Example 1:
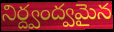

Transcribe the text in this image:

నిర్ద్వంద్వమైన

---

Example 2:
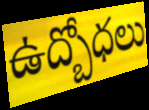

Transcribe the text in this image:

ఉద్బోధలు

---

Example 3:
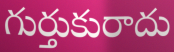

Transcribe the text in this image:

గుర్తుకురాదు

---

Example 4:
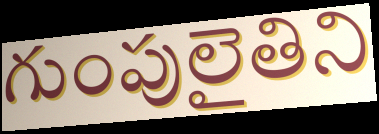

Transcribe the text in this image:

గుంపులైతిని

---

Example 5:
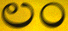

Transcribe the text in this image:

లం